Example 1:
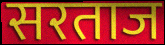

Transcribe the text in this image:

सरताज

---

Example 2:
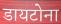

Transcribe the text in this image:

डायटोना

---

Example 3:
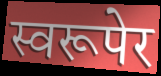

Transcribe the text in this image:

स्वरूपेर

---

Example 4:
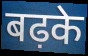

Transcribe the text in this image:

बढ़के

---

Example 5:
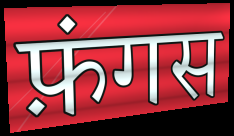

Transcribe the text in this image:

फ़ंगस